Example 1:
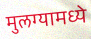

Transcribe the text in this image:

मुलग्यामध्ये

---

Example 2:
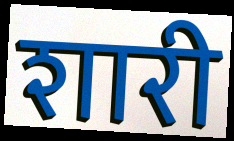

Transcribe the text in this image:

शारी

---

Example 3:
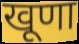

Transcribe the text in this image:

खूणा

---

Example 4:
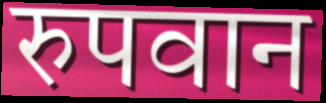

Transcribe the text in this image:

रुपवान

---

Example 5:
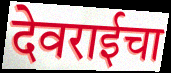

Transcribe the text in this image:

देवराईचा